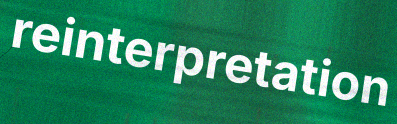
reinterpretation